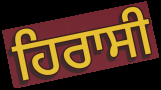
ਹਿਰਾਸੀ